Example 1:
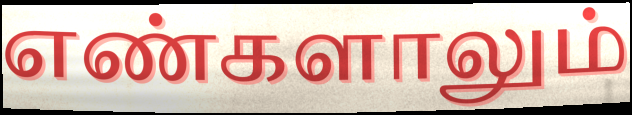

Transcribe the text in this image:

எண்களாலும்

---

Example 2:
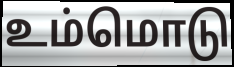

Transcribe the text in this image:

உம்மொடு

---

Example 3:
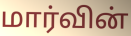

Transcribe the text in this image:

மார்வின்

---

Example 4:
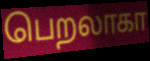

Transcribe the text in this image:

பெறலாகா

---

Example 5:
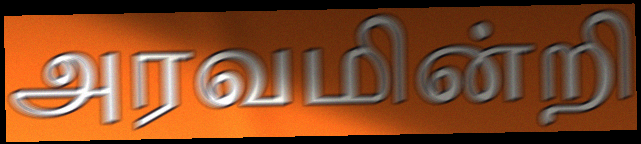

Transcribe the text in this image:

அரவமின்றி